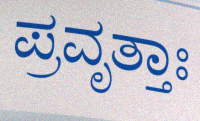
ಪ್ರವೃತ್ತಾಃ